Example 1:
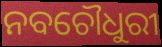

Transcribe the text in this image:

ନବଚୌଧୁରୀ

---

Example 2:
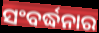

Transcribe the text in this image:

ସଂବର୍ଦ୍ଧନାର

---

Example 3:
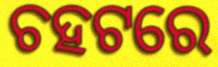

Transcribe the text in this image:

ଚହଟରେ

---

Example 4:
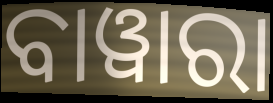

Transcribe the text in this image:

ବାୱାରା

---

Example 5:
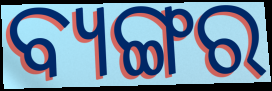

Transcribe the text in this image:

ବ୍ୟଙ୍ଗର